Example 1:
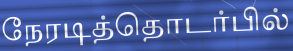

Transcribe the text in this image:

நேரடித்தொடர்பில்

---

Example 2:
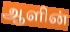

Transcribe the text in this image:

ஆளின்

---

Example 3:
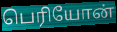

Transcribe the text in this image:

பெரியோன்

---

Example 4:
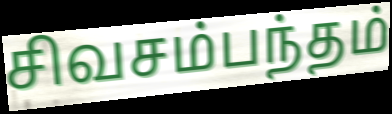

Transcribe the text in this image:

சிவசம்பந்தம்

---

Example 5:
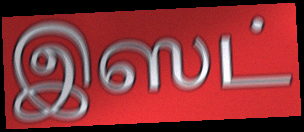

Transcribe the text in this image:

இஸட்